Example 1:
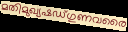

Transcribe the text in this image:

മതിമുഖ്യഷഡ്ഗുണവരൈ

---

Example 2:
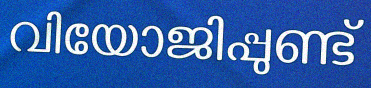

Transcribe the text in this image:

വിയോജിപ്പുണ്ട്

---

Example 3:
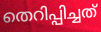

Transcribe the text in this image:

തെറിപ്പിച്ചത്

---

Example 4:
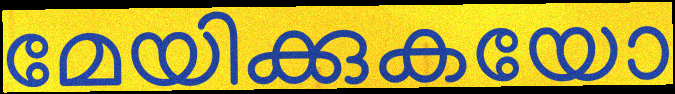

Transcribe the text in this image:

മേയിക്കുകയോ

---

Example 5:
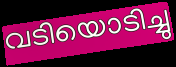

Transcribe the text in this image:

വടിയൊടിച്ചു